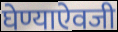
घेण्याऐवजी